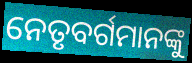
ନେତୃବର୍ଗମାନଙ୍କୁ